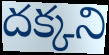
దక్కని